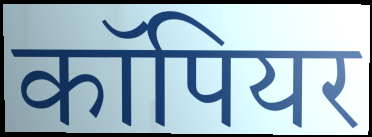
कॉपियर